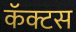
कॅक्टस